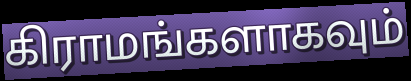
கிராமங்களாகவும்